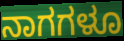
ನಾಗಗಳೂ